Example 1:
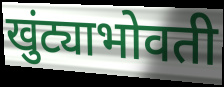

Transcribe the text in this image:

खुंट्याभोवती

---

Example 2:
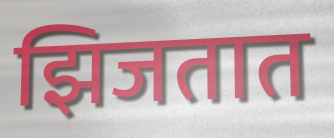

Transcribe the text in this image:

झिजतात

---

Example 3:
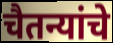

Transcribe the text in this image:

चैतन्यांचे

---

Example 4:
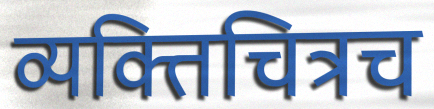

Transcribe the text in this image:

व्यक्तिचित्रच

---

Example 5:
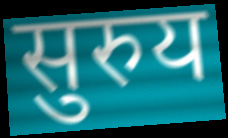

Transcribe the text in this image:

सुरुय